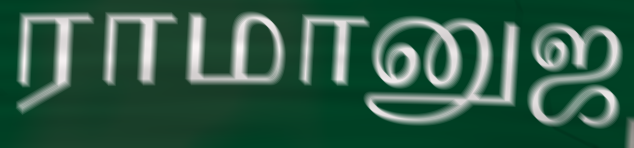
ராமானுஜ